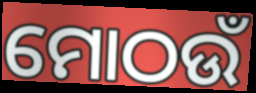
ମୋଠଉଁ